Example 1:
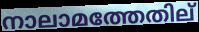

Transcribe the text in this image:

നാലാമത്തേതില്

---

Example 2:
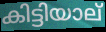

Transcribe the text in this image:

കിട്ടിയാല്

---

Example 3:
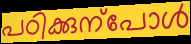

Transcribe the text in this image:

പഠിക്കുന്പോൾ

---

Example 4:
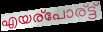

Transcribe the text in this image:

എയര്പോര്ട്ട്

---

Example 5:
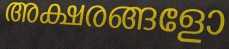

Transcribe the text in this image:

അക്ഷരങ്ങളോ